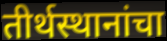
तीर्थस्थानांचा